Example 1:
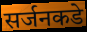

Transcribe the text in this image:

सर्जनकडे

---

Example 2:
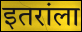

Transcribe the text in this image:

इतरांला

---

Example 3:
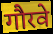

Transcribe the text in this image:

गौरवे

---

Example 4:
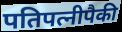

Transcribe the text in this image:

पतिपत्नीपैकी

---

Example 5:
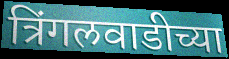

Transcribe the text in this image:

त्रिंगलवाडीच्या